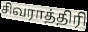
சிவராத்திரி